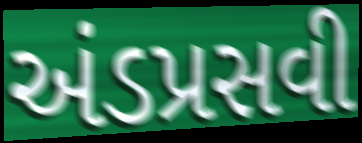
અંડપ્રસવી